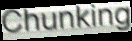
Chunking